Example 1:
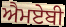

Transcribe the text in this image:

ਐਮਏਬੀ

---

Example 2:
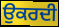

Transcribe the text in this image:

ਉਕਰਦੀ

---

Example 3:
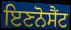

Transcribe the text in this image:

ਇਣਨੋਸੈਂਟ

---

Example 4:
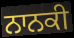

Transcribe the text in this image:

ਨਾਨਕੀ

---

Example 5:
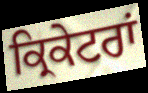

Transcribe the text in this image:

ਕ੍ਰਿਕੇਟਰਾਂ